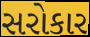
સરોકાર